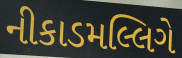
નીકાડમલ્લિગે